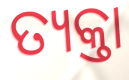
ତ୍ୟକ୍ତା